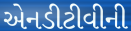
એનડીટીવીની